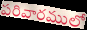
పరివారములో